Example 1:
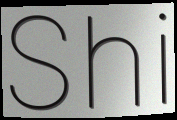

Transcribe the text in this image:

Shi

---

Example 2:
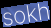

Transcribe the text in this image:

sokh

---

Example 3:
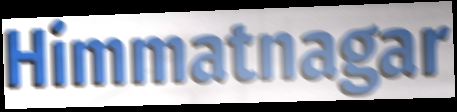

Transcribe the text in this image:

Himmatnagar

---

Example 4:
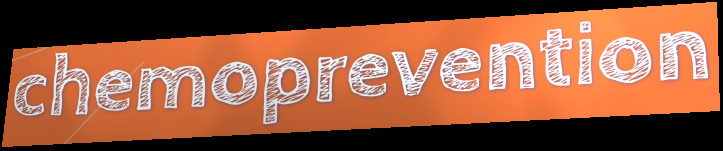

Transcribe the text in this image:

chemoprevention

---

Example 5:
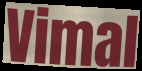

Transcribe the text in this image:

Vimal